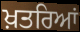
ਖ਼ਤਰਿਆਂ